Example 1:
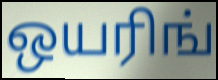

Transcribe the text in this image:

ஒயரிங்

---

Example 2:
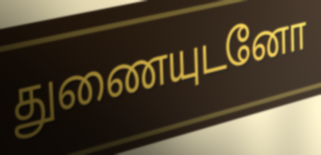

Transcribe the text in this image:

துணையுடனோ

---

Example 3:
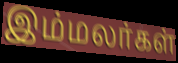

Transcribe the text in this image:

இம்மலர்கள்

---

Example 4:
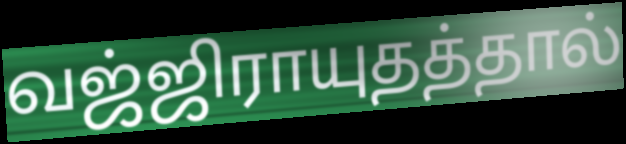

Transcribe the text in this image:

வஜ்ஜிராயுதத்தால்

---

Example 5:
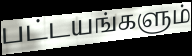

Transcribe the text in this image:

பட்டயங்களும்